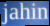
jahin